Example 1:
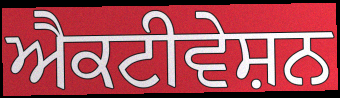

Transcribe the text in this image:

ਐਕਟੀਵੇਸ਼ਨ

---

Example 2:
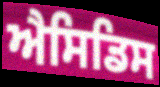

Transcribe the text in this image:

ਐਸਿਡਿਸ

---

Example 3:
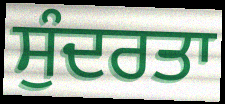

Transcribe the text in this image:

ਸੁੰਦਰਤਾ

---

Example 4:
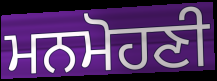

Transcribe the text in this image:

ਮਨਮੋਹਣੀ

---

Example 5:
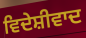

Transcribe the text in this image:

ਵਿਦੇਸ਼ੀਵਾਦ